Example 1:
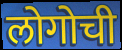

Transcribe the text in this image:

लोगोची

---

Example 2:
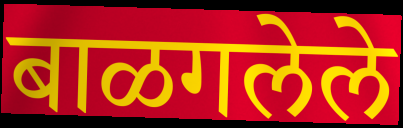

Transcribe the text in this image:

बाळगलेले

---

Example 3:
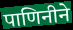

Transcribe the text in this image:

पाणिनीने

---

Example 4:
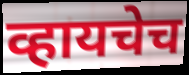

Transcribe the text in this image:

व्हायचेच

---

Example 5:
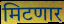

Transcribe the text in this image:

मिटणार